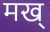
मख्